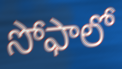
సోఫాలో